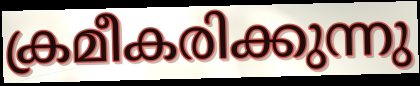
ക്രമീകരിക്കുന്നു